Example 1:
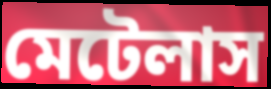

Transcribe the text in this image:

মেটেলাস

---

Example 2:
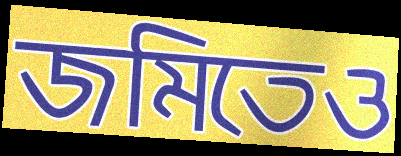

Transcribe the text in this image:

জমিতেও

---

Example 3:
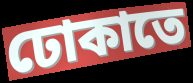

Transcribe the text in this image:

ঢোকাতে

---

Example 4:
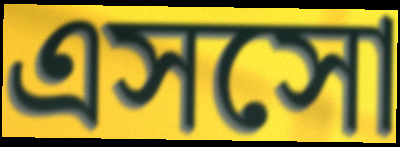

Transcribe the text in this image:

এসসো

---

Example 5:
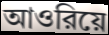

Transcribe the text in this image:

আওরিয়ে